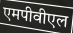
एमपीवीएल